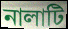
নালাটি